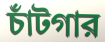
চাঁটগার